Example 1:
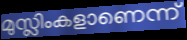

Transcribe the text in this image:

മുസ്ലിംകളാണെന്ന്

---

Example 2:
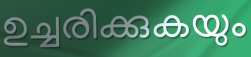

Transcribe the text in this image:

ഉച്ചരിക്കുകയും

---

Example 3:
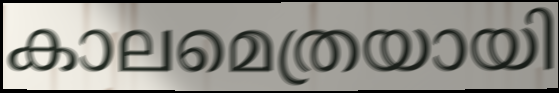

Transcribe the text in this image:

കാലമെത്രയായി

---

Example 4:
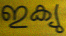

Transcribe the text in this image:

ഇക്യു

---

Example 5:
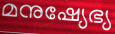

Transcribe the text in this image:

മനുഷ്യേഭ്യ